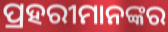
ପ୍ରହରୀମାନଙ୍କର